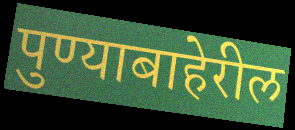
पुण्याबाहेरील